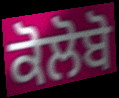
ਕੋਲੋਬੋ